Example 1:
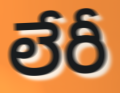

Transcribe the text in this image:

లేరీ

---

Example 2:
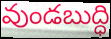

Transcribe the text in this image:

వుండబుద్ధి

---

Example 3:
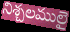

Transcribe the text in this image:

నిశ్చలములై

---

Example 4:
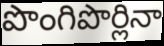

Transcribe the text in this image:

పొంగిపొర్లినా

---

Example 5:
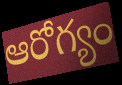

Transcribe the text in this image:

ఆరోగ్యం